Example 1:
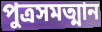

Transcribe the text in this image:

পুত্রসমত্মান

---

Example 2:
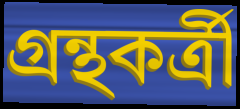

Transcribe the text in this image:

গ্রন্থকর্ত্রী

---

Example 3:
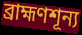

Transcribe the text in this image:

ব্রাহ্মণশূন্য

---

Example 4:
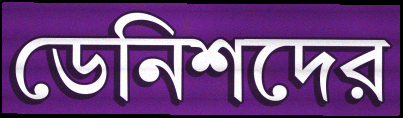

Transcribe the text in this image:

ডেনিশদের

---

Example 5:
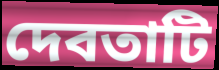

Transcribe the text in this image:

দেবতাটি